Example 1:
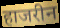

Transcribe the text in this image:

हाजरीन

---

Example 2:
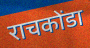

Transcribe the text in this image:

राचकोंडा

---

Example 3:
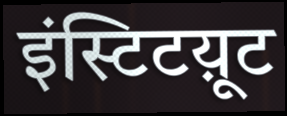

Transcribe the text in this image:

इंस्टिटय़ूट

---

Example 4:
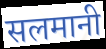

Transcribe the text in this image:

सलमानी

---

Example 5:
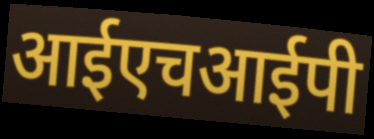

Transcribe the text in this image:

आईएचआईपी